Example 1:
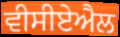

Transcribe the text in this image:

ਵੀਸੀਏਐਲ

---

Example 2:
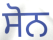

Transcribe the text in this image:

ਸੋਨ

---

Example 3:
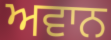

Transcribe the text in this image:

ਅਵਾਨ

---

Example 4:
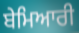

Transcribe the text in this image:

ਬੇਮਿਆਰੀ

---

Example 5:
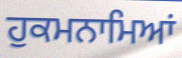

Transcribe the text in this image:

ਹੁਕਮਨਾਮਿਆਂ